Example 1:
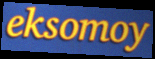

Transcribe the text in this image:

eksomoy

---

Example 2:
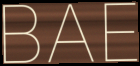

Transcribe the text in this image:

BAE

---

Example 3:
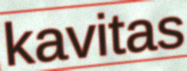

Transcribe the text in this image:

kavitas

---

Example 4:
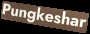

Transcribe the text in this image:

Pungkeshar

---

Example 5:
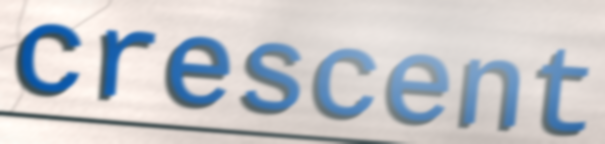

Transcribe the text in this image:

crescent